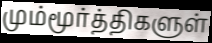
மும்மூர்த்திகளுள்